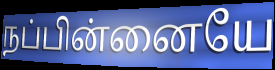
நப்பின்னையே